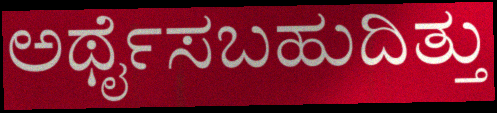
ಅರ್ಥೈಸಬಹುದಿತ್ತು